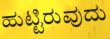
ಹುಟ್ಟಿರುವುದು